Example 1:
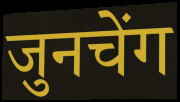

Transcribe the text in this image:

जुनचेंग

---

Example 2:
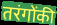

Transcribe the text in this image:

तरंगोंकी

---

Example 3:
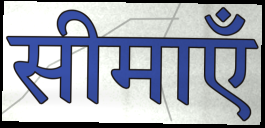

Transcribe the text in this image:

सीमाएँ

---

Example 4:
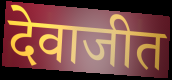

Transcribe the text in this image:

देवाजीत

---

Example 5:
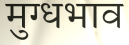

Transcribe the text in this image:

मुग्धभाव